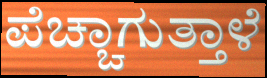
ಪೆಚ್ಚಾಗುತ್ತಾಳೆ